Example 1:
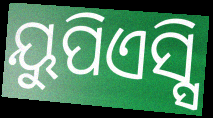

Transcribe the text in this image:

ୟୁପିଏସ୍ସି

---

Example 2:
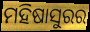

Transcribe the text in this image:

ମହିଷାସୁରର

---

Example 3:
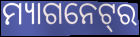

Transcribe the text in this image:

ମ୍ୟାଗନେଟ୍‌ର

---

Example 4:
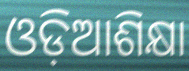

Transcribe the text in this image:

ଓଡ଼ିଆଶିକ୍ଷା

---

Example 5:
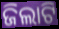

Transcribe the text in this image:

ଜିଲାଟି